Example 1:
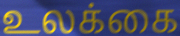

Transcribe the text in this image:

உலக்கை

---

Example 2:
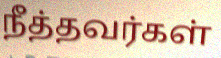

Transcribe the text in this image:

நீத்தவர்கள்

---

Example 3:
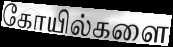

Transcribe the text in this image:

கோயில்களை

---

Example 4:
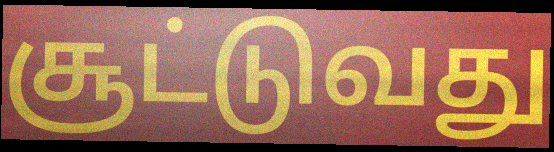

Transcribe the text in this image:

சூட்டுவது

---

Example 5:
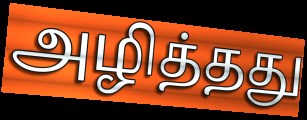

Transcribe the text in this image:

அழித்தது